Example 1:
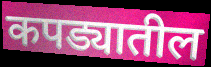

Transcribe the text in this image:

कपड्यातील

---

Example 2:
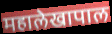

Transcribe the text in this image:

महालेखापाल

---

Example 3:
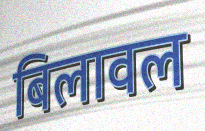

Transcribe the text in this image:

बिलावल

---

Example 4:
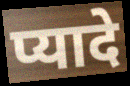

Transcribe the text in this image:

प्यादे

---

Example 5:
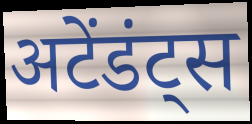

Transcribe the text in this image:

अटेंडंट्स